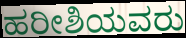
ಹರೀಶಿಯವರು